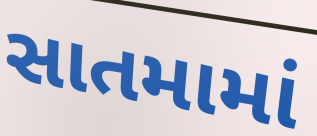
સાતમામાં